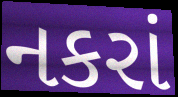
નકરાં